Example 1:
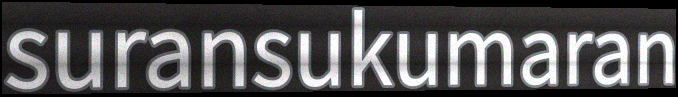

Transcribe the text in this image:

suransukumaran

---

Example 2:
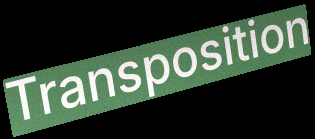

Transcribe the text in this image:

Transposition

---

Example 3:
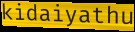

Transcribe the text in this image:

kidaiyathu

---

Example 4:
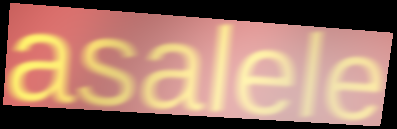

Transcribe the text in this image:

asalele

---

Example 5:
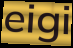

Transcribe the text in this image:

eigi